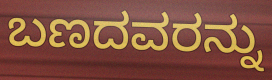
ಬಣದವರನ್ನು